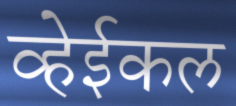
व्हेईकल